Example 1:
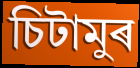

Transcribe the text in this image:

চিটামুৰ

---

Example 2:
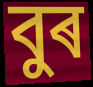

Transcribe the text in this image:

বুৰ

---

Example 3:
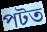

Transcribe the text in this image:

পটত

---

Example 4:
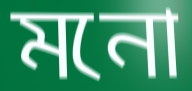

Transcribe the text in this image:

মনো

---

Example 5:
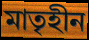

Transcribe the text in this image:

মাতৃহীন